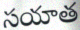
సయాత